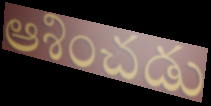
ఆశించడు